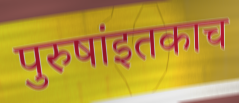
पुरुषांइतकाच